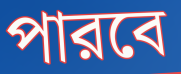
পারবে